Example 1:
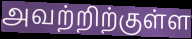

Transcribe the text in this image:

அவற்றிற்குள்ள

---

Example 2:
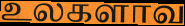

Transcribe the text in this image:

உலகளாவ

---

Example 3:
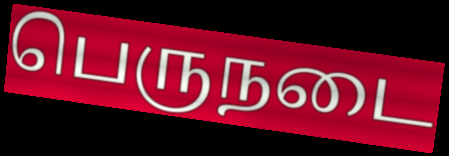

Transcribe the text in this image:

பெருநடை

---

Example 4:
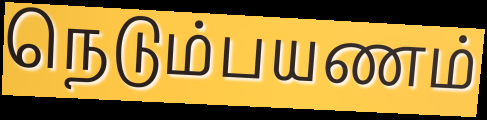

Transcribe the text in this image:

நெடும்பயணம்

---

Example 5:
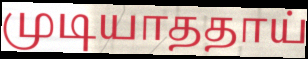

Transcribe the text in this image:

முடியாததாய்